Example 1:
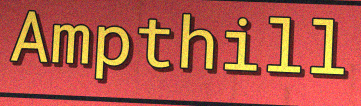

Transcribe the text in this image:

Ampthill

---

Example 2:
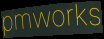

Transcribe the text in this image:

pmworks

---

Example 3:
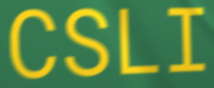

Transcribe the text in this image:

CSLI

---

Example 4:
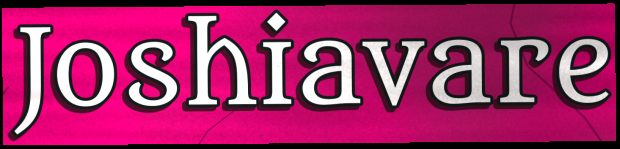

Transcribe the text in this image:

Joshiavare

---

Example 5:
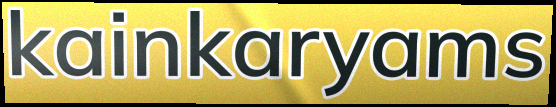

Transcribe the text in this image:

kainkaryams